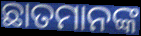
ଛାତମାନଙ୍କ